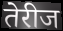
तेरीज